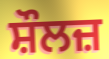
ਸ਼ੌਲਜ਼